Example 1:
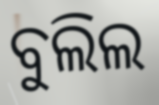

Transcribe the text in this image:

ବୁଲିଲ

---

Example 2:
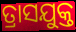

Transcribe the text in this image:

ତ୍ରାସଯୁକ୍ତ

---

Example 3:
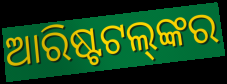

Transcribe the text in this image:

ଆରିଷ୍ଟଟଲ୍‌ଙ୍କର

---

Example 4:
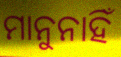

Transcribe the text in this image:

ମାନୁନାହିଁ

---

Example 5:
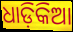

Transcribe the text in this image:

ଧାଡ଼ିକିଆ